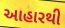
આહારથી